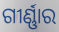
ଗୀର୍ଣ୍ଣାର